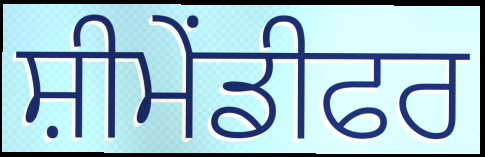
ਸ਼ੀਮੇਂਡੀਫਰ